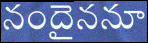
నందైననూ